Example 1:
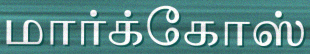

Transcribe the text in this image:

மார்க்கோஸ்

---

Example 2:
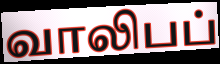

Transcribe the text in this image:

வாலிபப்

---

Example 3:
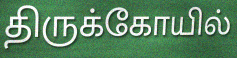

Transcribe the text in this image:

திருக்கோயில்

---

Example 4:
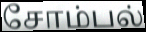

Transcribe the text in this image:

சோம்பல்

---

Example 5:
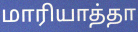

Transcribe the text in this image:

மாரியாத்தா